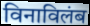
विनाविलंब